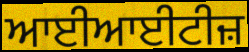
ਆਈਆਈਟੀਜ਼